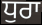
ਧੁਰਾ